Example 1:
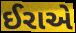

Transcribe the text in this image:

ઈરાએ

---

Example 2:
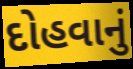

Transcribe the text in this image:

દોહવાનું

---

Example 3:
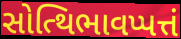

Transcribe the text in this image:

સોત્થિભાવપ્પત્તં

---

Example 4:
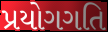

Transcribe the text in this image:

પ્રયોગગતિ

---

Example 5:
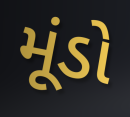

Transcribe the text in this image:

મૂંડો